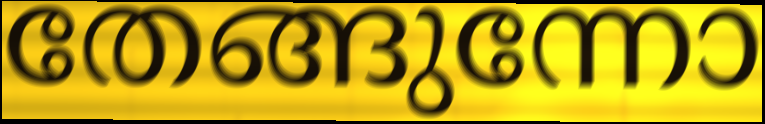
തേങ്ങുന്നോ